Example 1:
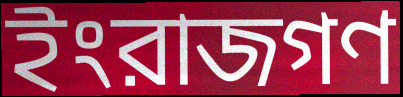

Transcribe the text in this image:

ইংরাজগণ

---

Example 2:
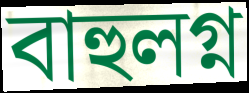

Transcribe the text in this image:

বাহুলগ্ন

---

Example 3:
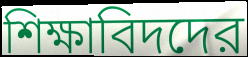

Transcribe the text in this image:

শিক্ষাবিদদের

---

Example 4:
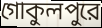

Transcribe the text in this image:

গোকুলপুরে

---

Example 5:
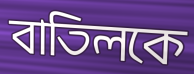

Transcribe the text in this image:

বাতিলকে